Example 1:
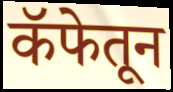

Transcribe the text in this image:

कॅफेतून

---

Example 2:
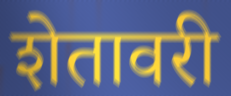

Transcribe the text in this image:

शेतावरी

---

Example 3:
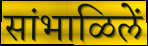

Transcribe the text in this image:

सांभाळिलें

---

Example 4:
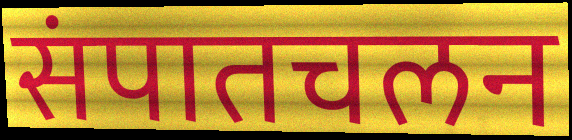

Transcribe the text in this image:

संपातचलन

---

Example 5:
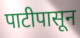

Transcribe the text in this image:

पाटीपासून